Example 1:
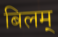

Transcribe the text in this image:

बिलम्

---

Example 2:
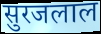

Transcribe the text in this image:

सुरजलाल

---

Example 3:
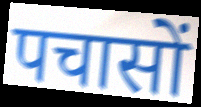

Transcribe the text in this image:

पचासों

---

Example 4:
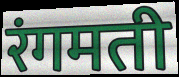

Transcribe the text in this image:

रंगमती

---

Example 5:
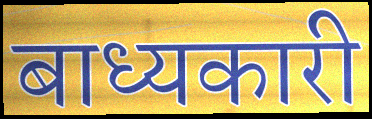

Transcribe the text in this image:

बाध्यकारी